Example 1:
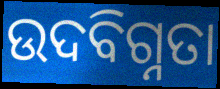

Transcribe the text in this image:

ଉଦବିଗ୍ନତା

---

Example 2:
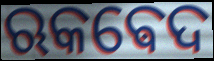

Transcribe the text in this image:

ଋକଵେଦ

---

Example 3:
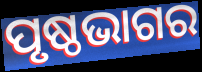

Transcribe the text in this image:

ପୃଷ୍ଠଭାଗର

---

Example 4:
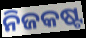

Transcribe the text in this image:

ନିଜକଷ୍ଟ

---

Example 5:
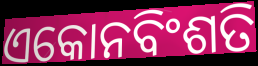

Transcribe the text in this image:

ଏକୋନବିଂଶତି